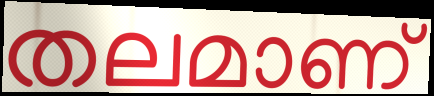
തലമാണ്